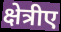
क्षेत्रीए